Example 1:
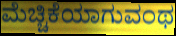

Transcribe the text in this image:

ಮೆಚ್ಚಿಕೆಯಾಗುವಂಥ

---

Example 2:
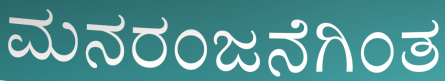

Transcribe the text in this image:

ಮನರಂಜನೆಗಿಂತ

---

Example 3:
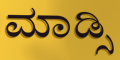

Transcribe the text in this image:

ಮಾಡ್ಸಿ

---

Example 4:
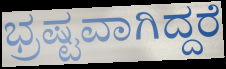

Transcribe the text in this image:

ಭ್ರಷ್ಟವಾಗಿದ್ದರೆ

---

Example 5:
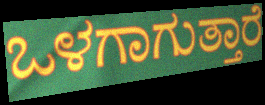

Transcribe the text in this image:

ಒಳಗಾಗುತ್ತಾರೆ